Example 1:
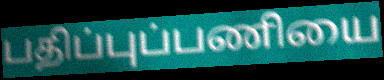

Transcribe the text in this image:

பதிப்புப்பணியை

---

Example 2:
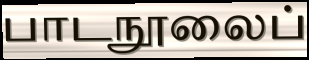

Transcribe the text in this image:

பாடநூலைப்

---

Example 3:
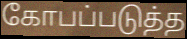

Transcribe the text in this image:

கோபப்படுத்த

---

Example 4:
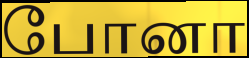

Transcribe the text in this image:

போனா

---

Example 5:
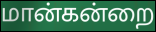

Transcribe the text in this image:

மான்கன்றை